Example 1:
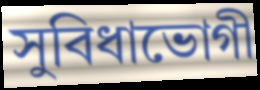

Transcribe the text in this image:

সুবিধাভোগী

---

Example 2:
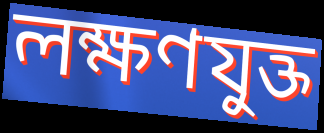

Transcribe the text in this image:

লক্ষণযুক্ত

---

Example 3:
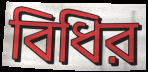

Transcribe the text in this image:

বিধির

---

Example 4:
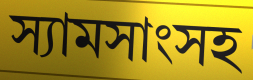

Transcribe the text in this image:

স্যামসাংসহ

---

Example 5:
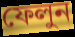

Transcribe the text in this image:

ফেলুন